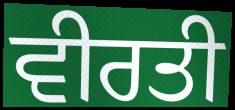
ਵੀਰਤੀ